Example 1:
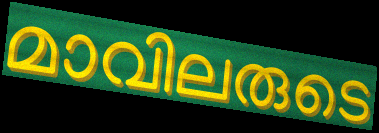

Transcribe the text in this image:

മാവിലരുടെ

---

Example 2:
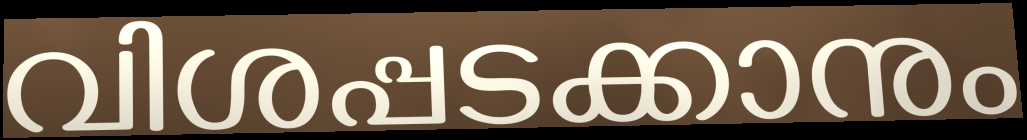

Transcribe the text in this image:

വിശപ്പടക്കാനും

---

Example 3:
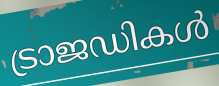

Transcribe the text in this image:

ട്രാജഡികൾ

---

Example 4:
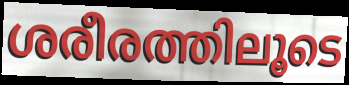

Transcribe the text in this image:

ശരീരത്തിലൂടെ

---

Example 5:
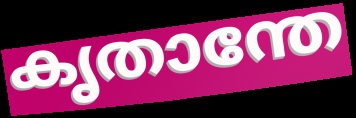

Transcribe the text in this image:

കൃതാന്തേ